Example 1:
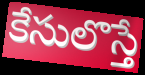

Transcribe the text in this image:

కేసులొస్తే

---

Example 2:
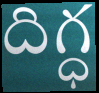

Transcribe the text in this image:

దిగ్ధ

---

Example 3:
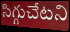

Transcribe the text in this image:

సిగ్గుచేటని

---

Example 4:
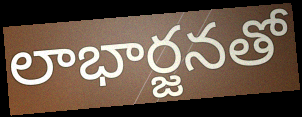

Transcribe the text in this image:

లాభార్జనతో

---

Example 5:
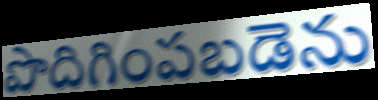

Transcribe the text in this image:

పొదిగింపబడెను